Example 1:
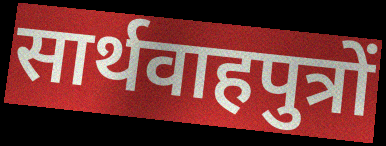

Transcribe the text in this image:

सार्थवाहपुत्रों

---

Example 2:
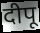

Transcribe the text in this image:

दीपू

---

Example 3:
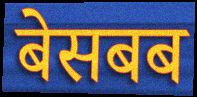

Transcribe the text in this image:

बेसबब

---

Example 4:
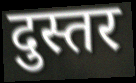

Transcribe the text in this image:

दुस्तर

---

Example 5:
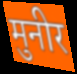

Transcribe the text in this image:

मुनीर